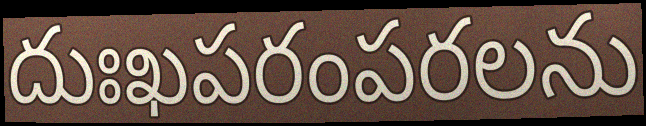
దుఃఖపరంపరలను